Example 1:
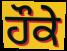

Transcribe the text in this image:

ਹੌਕੇ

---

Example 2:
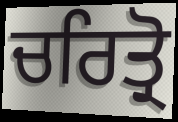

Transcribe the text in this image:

ਚਰਿਤ੍ਰੋ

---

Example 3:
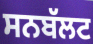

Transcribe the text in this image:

ਸਨਬੱਲਟ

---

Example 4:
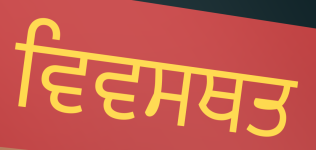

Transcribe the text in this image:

ਵਿਵਸਥਤ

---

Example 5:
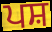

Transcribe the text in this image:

ਪਸ਼